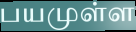
பயமுள்ள